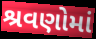
શ્રવણોમાં